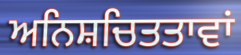
ਅਨਿਸ਼ਚਿਤਤਾਵਾਂ